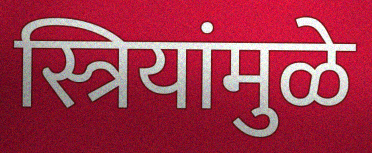
स्त्रियांमुळे